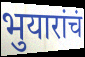
भुयारांचं